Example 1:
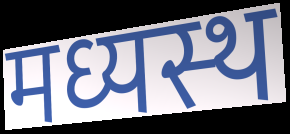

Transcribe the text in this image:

मध्यस्थ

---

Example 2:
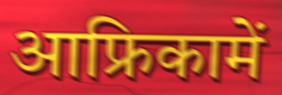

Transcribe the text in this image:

आफ्रिकामें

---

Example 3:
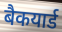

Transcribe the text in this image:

बैकयार्ड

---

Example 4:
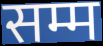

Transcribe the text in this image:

सम्म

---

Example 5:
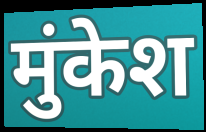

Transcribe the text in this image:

मुंकेश